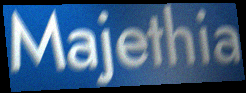
Majethia